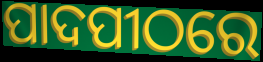
ପାଦପୀଠରେ